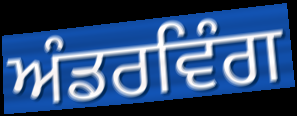
ਅੰਡਰਵਿੰਗ